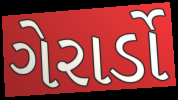
ગેરાર્ડો